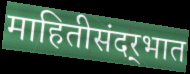
माहितीसंदर्भात